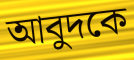
আবুদকে